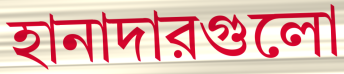
হানাদারগুলো